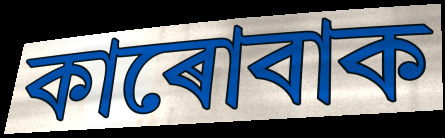
কাৰোবাক